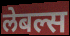
लेबल्स